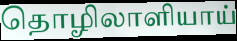
தொழிலாளியாய்